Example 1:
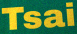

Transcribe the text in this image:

Tsai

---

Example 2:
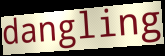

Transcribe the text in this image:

dangling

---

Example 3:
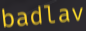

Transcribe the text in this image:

badlav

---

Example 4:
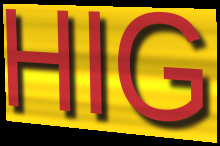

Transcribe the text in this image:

HIG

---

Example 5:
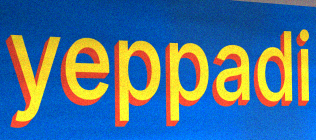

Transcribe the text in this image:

yeppadi